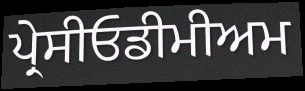
ਪ੍ਰੇਸੀਓਡੀਮੀਅਮ